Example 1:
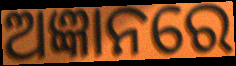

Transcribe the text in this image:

ଅଜ୍ଞାନରେ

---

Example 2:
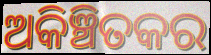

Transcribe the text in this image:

ଅକିଞ୍ଚିତକର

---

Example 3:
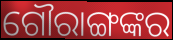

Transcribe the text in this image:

ଗୌରାଙ୍ଗଙ୍କର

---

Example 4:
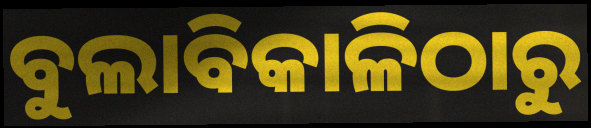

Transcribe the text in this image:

ବୁଲାବିକାଳିଠାରୁ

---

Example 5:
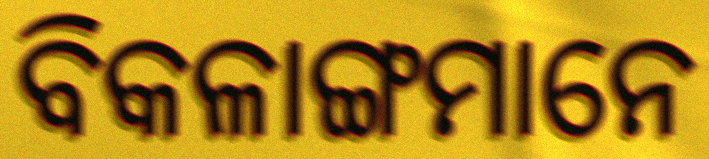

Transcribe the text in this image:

ବିକଳାଙ୍ଗମାନେ